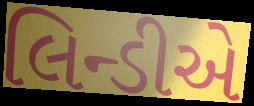
લિન્ડીએ